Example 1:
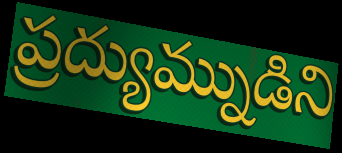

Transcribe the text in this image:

ప్రద్యుమ్నుడిని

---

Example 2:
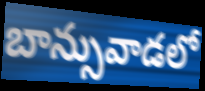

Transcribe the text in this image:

బాన్సువాడలో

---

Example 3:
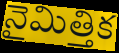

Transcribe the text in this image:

నైమిత్తిక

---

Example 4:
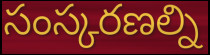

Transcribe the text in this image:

సంస్కరణల్ని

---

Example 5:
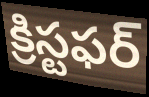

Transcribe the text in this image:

క్రిస్టఫర్